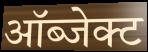
ऑब्‍जेक्‍ट